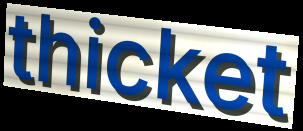
thicket